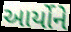
આર્યોને